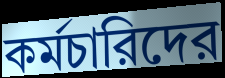
কর্মচারিদের